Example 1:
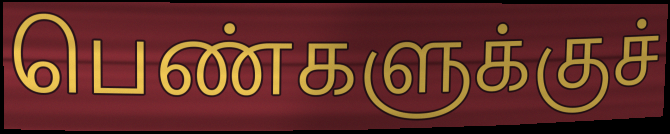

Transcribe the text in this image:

பெண்களுக்குச்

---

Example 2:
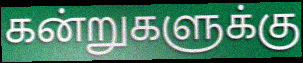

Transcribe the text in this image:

கன்றுகளுக்கு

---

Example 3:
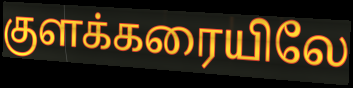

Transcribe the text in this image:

குளக்கரையிலே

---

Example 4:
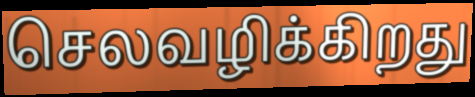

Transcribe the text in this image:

செலவழிக்கிறது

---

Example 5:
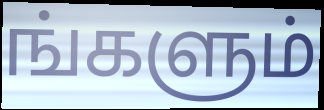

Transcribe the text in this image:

ங்களும்